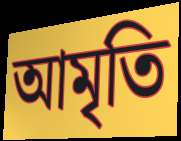
আমৃতি